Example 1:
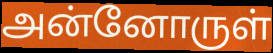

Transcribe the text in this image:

அன்னோருள்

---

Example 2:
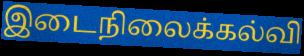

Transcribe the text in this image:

இடைநிலைக்கல்வி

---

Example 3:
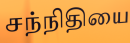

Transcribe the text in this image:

சந்நிதியை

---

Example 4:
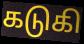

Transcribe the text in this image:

கடுகி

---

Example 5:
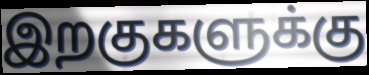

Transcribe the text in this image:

இறகுகளுக்கு